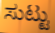
ಸುಟ್ಟು